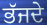
ਭੱਜਦੇ